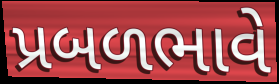
પ્રબળભાવે